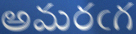
అమరఁగ